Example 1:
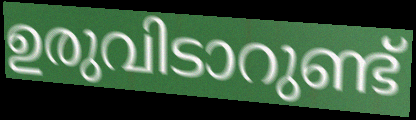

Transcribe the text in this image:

ഉരുവിടാറുണ്ട്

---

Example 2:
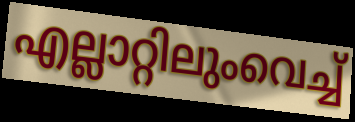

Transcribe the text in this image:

എല്ലാറ്റിലുംവെച്ച്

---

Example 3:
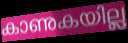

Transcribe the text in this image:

കാണുകയില്ല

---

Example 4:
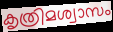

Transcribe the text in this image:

കൃത്രിമശ്വാസം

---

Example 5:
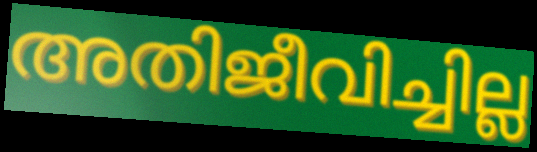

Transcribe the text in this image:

അതിജീവിച്ചില്ല